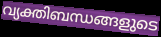
വ്യക്തിബന്ധങ്ങളുടെ